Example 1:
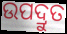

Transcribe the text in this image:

ଉପଦ୍ରୁତ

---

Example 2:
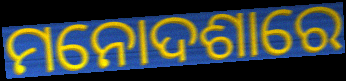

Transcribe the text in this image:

ମନୋଦଶାରେ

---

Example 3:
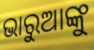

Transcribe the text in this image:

ଭାରୁଆଙ୍କୁ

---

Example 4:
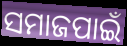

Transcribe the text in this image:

ସମାଜପାଇଁ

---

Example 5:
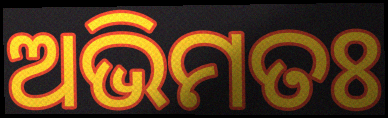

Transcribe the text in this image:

ଅଭିମତଃ